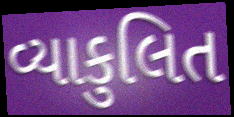
વ્યાકુલિત